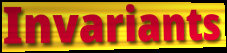
Invariants